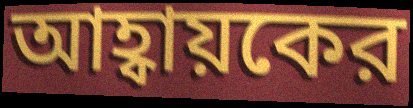
আহ্বায়কের